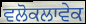
ਵਲੋਕਲਾਵੇਕ